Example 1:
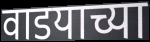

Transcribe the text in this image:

वाडयाच्या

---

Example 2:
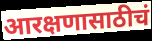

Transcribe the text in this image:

आरक्षणासाठीचं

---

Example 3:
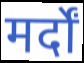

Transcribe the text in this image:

मर्दों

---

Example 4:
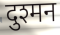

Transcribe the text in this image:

दुश्मन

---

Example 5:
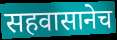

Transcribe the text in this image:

सहवासानेच